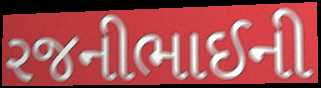
રજનીભાઈની